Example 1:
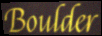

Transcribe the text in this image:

Boulder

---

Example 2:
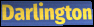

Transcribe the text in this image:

Darlington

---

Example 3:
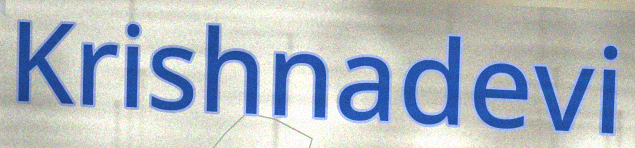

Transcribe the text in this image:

Krishnadevi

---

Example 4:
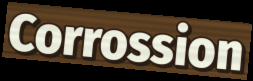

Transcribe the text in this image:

Corrossion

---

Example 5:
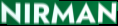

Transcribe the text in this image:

NIRMAN